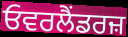
ਓਵਰਲੈਂਡਰਜ਼